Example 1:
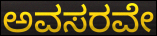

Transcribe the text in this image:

ಅವಸರವೇ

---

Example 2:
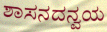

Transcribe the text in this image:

ಶಾಸನದನ್ವಯ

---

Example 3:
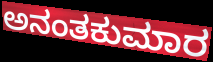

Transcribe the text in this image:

ಅನಂತಕುಮಾರ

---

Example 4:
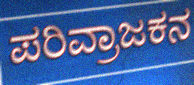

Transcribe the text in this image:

ಪರಿವ್ರಾಜಕನ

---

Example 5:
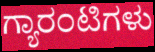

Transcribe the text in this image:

ಗ್ಯಾರಂಟಿಗಳು